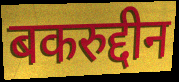
बकरुद्दीन